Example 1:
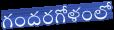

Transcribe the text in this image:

గందరగోళంలో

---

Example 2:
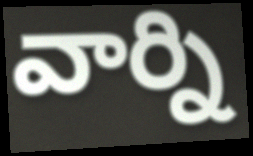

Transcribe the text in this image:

వార్ని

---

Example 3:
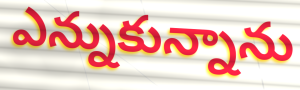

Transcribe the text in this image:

ఎన్నుకున్నాను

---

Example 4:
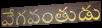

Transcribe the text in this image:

వేగవంతుడు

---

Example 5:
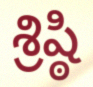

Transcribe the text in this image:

శ్రిష్ఠి